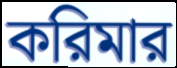
করিমার